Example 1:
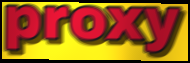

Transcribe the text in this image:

proxy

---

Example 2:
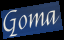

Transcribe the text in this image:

Goma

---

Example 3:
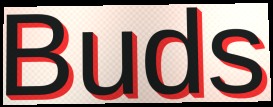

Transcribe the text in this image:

Buds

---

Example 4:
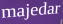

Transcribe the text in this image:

majedar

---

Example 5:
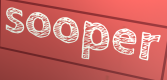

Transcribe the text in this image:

sooper